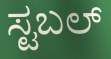
ಸ್ಟಬಲ್